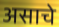
असाचे